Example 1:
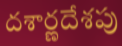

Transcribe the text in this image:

దశార్ణదేశపు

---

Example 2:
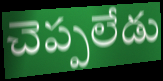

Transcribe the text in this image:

చెప్పలేడు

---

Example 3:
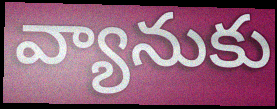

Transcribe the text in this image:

వ్యానుకు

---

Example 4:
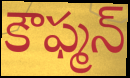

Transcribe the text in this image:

కౌఫ్మన్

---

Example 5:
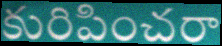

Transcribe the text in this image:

కురిపించరా